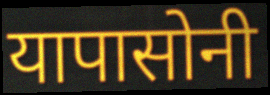
यापासोनी